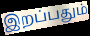
இறப்பதும்